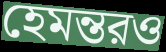
হেমন্তরও